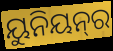
ୟୁନିୟନ୍‌ର